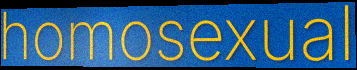
homosexual